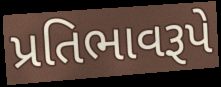
પ્રતિભાવરૂપે